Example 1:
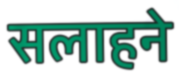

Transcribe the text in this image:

सलाहने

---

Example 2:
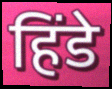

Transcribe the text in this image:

हिंडे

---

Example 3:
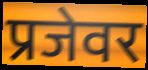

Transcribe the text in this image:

प्रजेवर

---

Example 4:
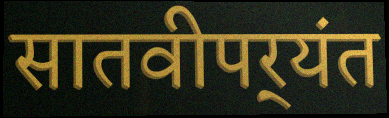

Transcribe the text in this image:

सातवीपर्यंत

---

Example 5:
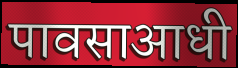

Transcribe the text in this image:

पावसाआधी